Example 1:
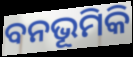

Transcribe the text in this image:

ବନଭୂମିକି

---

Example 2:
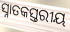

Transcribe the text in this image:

ସ୍ନାତକସ୍ତରୀୟ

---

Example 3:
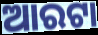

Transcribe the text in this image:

ଆରଟା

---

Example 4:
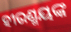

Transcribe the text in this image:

ହୀରଣ୍ମୟଙ୍କ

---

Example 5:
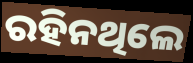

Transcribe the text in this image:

ରହିନଥିଲେ